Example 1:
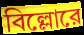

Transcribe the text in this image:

বিল্লোরে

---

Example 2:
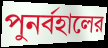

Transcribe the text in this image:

পুনর্বহালের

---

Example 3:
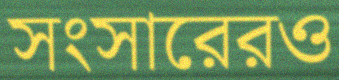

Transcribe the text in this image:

সংসারেরও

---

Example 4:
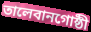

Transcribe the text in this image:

তালেবানগোষ্ঠী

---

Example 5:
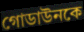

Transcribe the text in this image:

গোডাউনকে